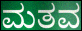
ಮತವ